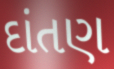
દાંતણ